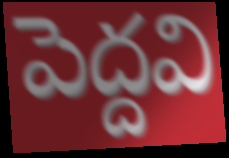
పెద్దవి